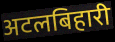
अटलबिहारी